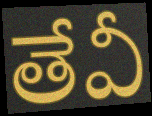
తేవీ